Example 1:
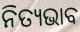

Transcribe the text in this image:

ନିତ୍ୟଭାବ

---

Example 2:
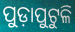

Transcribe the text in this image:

ପୁଡ଼ାପୁଟୁଳି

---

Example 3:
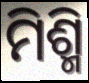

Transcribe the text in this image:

ମିଶ୍ମି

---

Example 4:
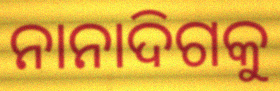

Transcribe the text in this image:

ନାନାଦିଗକୁ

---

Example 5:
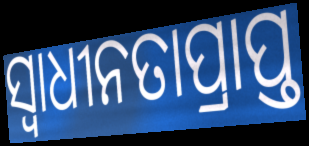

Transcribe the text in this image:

ସ୍ବାଧୀନତାପ୍ରାପ୍ତ